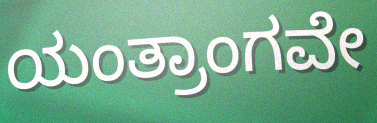
ಯಂತ್ರಾಂಗವೇ